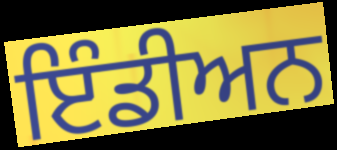
ਇੰਡੀਅਨ